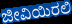
ಜೀವಿಯಿರಲಿ